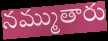
నమ్ముతారు